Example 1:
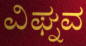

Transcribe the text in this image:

ವಿಘ್ನವ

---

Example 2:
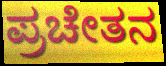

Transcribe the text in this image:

ಪ್ರಚೇತನ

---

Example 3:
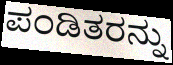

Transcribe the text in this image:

ಪಂಡಿತರನ್ನು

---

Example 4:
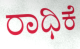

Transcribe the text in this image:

ರಾಧಿಕೆ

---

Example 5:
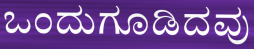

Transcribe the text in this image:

ಒಂದುಗೂಡಿದವು